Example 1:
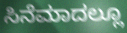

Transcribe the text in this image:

ಸಿನೆಮಾದಲ್ಲೂ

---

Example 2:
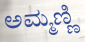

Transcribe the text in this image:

ಅಮ್ಮಣ್ಣಿ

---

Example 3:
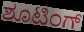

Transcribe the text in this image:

ಶೂಟಿಂಗ್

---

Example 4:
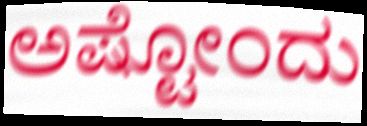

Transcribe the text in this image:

ಅಷ್ಟೋಂದು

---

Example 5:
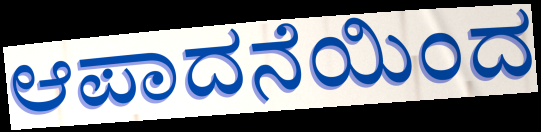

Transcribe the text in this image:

ಆಪಾದನೆಯಿಂದ